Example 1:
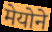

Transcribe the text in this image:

मेयोने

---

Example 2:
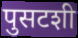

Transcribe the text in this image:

पुसटशी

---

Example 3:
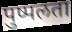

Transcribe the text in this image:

पुष्पलता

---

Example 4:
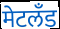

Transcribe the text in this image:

मेटलँड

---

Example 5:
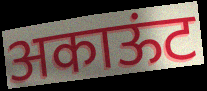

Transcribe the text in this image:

अकाऊंट